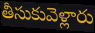
తీసుకువెళ్లారు